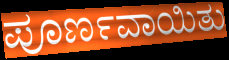
ಪೂರ್ಣವಾಯಿತು